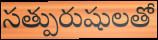
సత్పురుషులతో